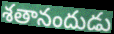
శతానందుడు